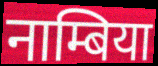
नाम्बिया